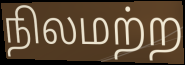
நிலமற்ற